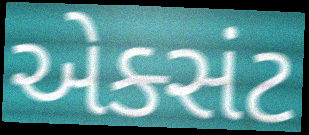
એક્સંટ